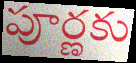
పూర్ణకు